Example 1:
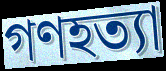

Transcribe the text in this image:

গণহত্যা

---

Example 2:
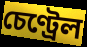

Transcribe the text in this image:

চেণ্ট্ৰেল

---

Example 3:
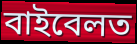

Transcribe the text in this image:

বাইবেলত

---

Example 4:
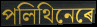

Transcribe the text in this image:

পলিথিনেৰে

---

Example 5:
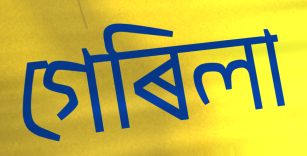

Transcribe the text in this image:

গেৰিলা